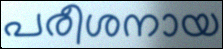
പരീശനായ